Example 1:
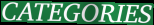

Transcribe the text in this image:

CATEGORIES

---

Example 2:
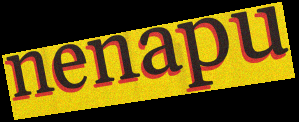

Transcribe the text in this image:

nenapu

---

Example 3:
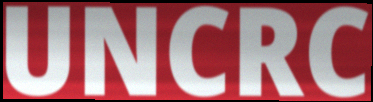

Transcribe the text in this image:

UNCRC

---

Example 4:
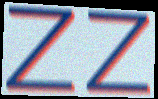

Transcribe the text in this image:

zz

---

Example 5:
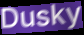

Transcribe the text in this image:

Dusky